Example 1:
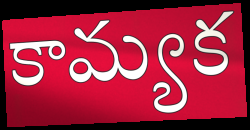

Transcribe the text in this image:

కామ్యక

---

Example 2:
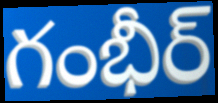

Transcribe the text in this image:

గంభీర్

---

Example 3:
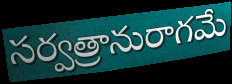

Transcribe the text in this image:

సర్వత్రానురాగమే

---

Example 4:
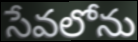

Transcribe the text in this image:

సేవలోను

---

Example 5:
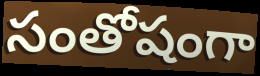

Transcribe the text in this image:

సంతోషంగా